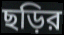
ছড়ির